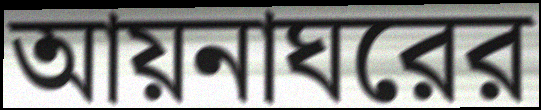
আয়নাঘরের